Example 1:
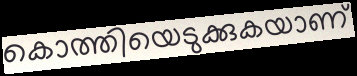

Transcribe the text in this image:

കൊത്തിയെടുക്കുകയാണ്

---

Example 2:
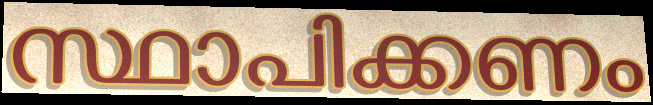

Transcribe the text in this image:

സ്ഥാപിക്കണം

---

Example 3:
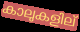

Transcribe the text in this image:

കാലുകളില്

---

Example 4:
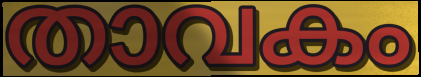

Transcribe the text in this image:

താവകം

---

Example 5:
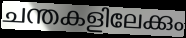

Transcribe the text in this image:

ചന്തകളിലേക്കും